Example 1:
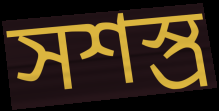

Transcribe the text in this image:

সশস্ত্ৰ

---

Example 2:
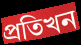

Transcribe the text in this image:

প্ৰতিখন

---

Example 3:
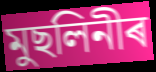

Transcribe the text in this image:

মুছলিনীৰ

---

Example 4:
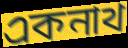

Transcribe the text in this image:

একনাথ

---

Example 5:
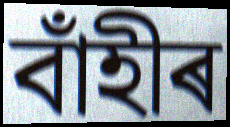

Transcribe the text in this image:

বাঁহীৰ